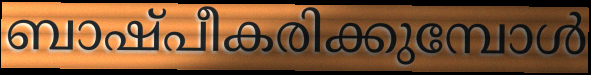
ബാഷ്പീകരിക്കുമ്പോൾ